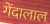
गेंदालाल